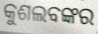
କୁଶଲବଙ୍କର